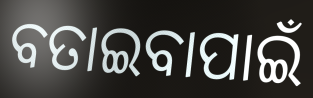
ବତାଇବାପାଇଁ